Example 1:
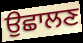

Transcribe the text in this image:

ਉਛਾਲਣ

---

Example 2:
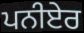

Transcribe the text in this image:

ਪਨੀਏਰ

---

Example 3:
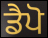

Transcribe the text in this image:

ਡੈਪੋ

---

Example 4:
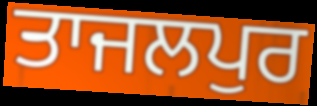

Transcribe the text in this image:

ਤਾਜਲਪੁਰ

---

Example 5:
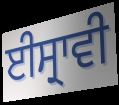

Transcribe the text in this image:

ਈਸ੍ਰਾਵੀ